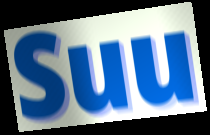
Suu